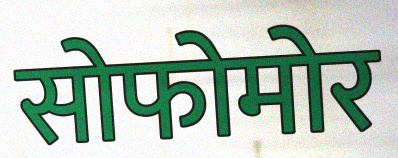
सोफोमोर